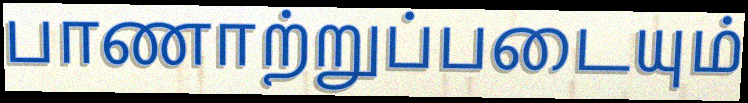
பாணாற்றுப்படையும்